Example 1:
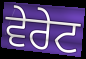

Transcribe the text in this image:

ਵੇਰੇਟ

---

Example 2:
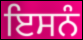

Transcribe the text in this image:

ਇਸਨੰ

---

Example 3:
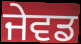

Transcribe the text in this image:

ਜੇਵਡ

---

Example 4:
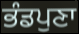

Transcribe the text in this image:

ਭੰਡਪੁਣਾ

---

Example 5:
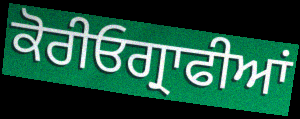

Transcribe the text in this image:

ਕੋਰੀਓਗ੍ਰਾਫੀਆਂ